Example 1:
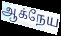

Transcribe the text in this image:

ஆக்நேய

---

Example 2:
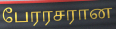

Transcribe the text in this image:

பேரரசரான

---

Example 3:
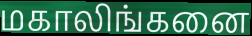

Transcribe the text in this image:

மகாலிங்கனை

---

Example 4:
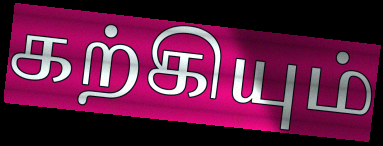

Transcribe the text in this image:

கற்கியும்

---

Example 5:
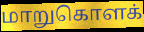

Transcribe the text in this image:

மாறுகொளக்